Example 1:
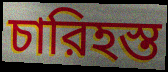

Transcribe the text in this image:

চারিহস্ত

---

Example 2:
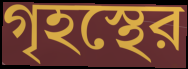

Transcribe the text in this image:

গৃহস্থের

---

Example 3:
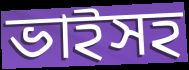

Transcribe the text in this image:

ভাইসহ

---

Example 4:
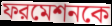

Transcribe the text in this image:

ফরমেশনকে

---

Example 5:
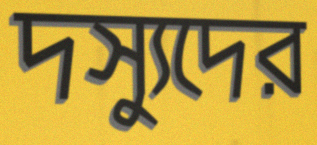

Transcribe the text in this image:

দস্যুদের